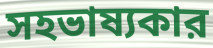
সহভাষ্যকার